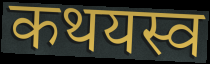
कथयस्व